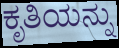
ಕೃತಿಯನ್ನು